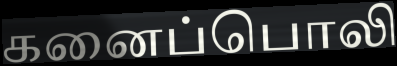
கனைப்பொலி